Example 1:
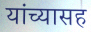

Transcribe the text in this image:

यांच्यासह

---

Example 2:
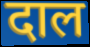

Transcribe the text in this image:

दाल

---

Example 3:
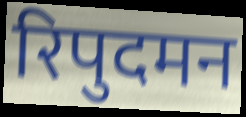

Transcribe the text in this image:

रिपुदमन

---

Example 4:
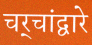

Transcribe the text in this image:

चर्चांद्वारे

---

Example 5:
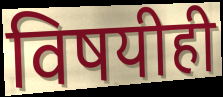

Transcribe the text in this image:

विषयीही